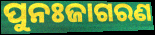
ପୁନଃଜାଗରଣ